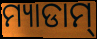
ମ୍ଯାଡାମ୍